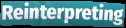
Reinterpreting